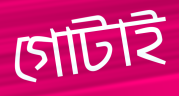
গোটাই